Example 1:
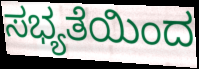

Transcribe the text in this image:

ಸಭ್ಯತೆಯಿಂದ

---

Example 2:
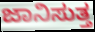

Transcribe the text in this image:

ಜಾನಿಸುತ್ತ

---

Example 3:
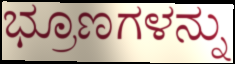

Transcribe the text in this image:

ಭ್ರೂಣಗಳನ್ನು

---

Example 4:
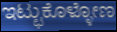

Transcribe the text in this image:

ಇಟ್ಟುಕೊಳ್ಳೋಣ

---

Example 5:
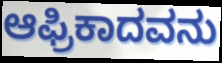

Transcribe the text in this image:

ಆಫ್ರಿಕಾದವನು